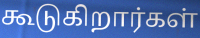
கூடுகிறார்கள்